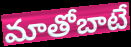
మాతోబాటే